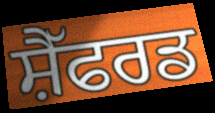
ਸ਼ੈੱਫਰਡ